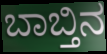
ಬಾಬ್ತಿನ